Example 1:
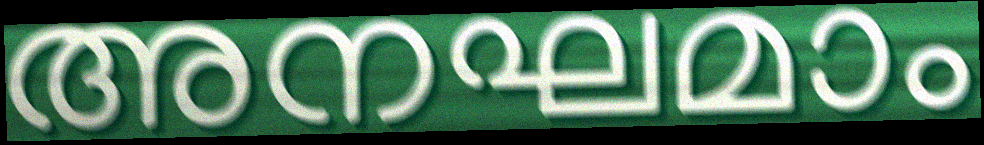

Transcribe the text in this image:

അനഘമാം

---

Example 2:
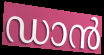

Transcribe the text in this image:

ഡാൻ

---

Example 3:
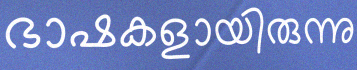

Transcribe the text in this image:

ഭാഷകളായിരുന്നു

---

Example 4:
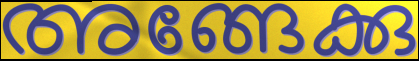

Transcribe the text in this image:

അങ്ങേക്കു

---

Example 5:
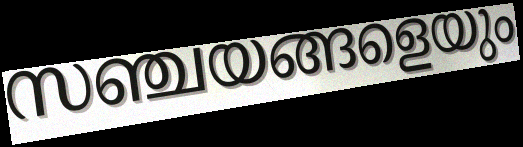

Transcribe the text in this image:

സഞ്ചയങ്ങളെയും